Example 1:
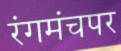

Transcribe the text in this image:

रंगमंचपर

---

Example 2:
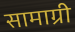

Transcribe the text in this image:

सामाग्री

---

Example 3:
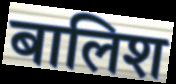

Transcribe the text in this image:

बालिश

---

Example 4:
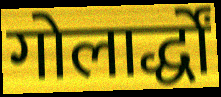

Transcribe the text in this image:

गोलार्द्धों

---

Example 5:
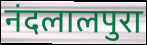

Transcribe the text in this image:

नंदलालपुरा